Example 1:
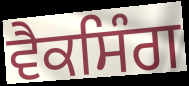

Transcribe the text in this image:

ਵੈਕਸਿੰਗ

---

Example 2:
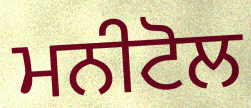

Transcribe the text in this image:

ਮਨੀਟੋਲ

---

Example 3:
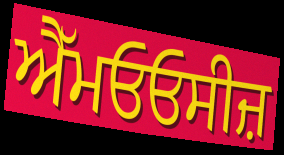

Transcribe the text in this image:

ਐੱਮਓਓਸੀਜ਼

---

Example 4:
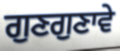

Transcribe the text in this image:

ਗੁਣਗੁਣਾਵੇ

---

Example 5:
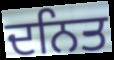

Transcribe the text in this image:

ਦਨਿਤ